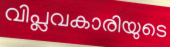
വിപ്ലവകാരിയുടെ